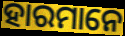
ହାରମାନେ